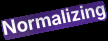
Normalizing